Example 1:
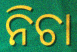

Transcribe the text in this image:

ନିଚା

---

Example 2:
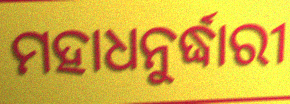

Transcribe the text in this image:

ମହାଧନୁର୍ଦ୍ଧାରୀ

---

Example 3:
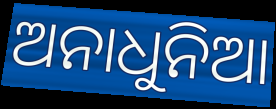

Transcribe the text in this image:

ଅନାଧୁନିଆ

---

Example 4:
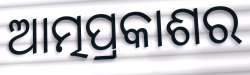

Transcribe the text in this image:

ଆତ୍ମପ୍ରକାଶର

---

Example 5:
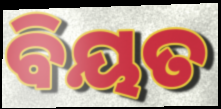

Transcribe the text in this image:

ବିୟତ